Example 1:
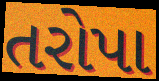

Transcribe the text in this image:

તરોપા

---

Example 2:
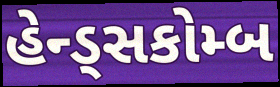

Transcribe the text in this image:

હેન્ડ્સકોમ્બ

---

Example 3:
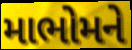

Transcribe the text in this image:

માભોમને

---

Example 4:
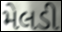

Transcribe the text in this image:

મેલડી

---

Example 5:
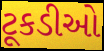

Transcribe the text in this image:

ટૂકડીઓ